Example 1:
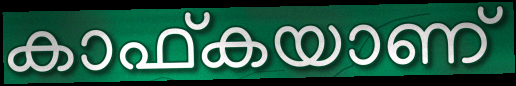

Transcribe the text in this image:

കാഫ്കയാണ്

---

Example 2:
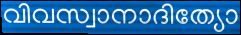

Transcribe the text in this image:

വിവസ്വാനാദിത്യോ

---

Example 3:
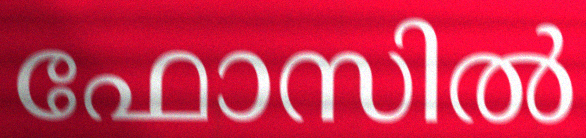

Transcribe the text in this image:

ഫോസിൽ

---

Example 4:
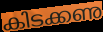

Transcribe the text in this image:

കിടക്കണു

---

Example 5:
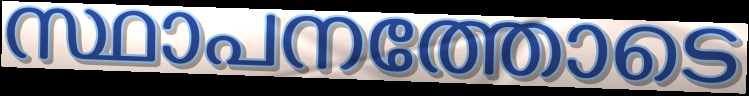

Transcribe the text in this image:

സ്ഥാപനത്തോടെ